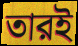
তারই